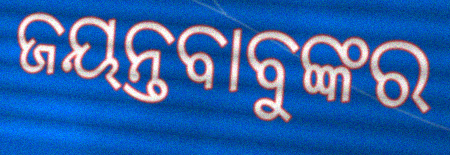
ଜୟନ୍ତବାବୁଙ୍କର